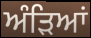
ਅੰੜਿਆਂ